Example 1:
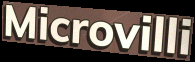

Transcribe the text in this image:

Microvilli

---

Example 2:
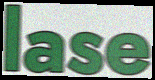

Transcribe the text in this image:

lase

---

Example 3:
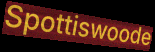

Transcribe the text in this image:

Spottiswoode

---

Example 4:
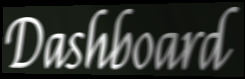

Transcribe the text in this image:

Dashboard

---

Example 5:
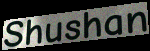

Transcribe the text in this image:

Shushan